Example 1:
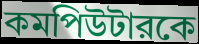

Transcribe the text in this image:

কমপিউটারকে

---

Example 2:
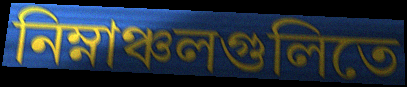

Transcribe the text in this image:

নিম্নাঞ্চলগুলিতে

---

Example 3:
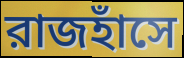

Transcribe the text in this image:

রাজহাঁসে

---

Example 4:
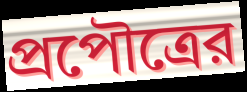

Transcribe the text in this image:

প্রপৌত্রের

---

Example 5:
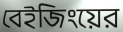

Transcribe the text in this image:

বেইজিংয়ের